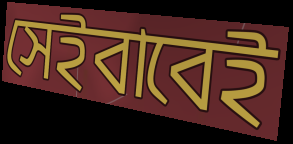
সেইবাবেই